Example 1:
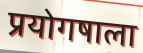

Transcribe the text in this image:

प्रयोगषाला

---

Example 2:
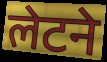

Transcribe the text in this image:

लेटने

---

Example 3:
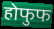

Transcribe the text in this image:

होफुफ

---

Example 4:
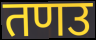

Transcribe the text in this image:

तणउ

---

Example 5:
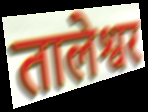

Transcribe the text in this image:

तालेश्वर